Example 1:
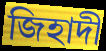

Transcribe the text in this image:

জিহাদী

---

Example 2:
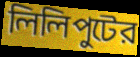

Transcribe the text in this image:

লিলিপুটের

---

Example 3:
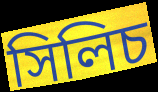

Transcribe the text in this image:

সিলিচ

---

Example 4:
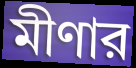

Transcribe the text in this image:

মীণার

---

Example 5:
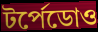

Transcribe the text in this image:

টর্পেডোও